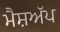
ਮੈਸ਼ਅੱਪ